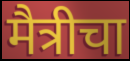
मैत्रीचा